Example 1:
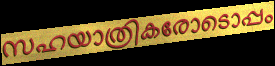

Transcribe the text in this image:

സഹയാത്രികരോടൊപ്പം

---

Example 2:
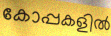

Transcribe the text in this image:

കോപ്പകളിൽ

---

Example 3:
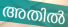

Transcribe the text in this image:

അതിൽ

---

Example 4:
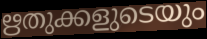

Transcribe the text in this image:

ഋതുക്കളുടെയും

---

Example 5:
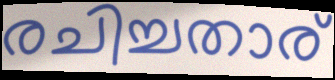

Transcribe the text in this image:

രചിച്ചതാര്